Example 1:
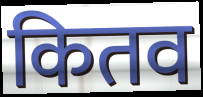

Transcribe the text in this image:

कितव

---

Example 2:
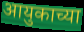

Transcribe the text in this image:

आयुकाच्या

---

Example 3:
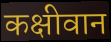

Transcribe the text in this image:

कक्षीवान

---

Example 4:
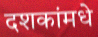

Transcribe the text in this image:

दशकांमधे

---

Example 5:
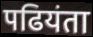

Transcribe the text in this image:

पढियंता